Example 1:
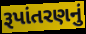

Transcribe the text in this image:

રૂપાંતરણનું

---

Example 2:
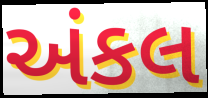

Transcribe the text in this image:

અંકલ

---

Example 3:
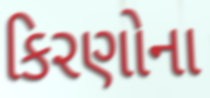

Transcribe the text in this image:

કિરણોના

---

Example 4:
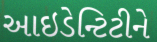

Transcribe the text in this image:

આઇડેન્ટિટીને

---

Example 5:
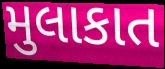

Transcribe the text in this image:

મુલાકાત